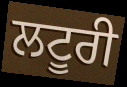
ਲਟੂਰੀ